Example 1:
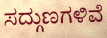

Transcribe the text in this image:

ಸದ್ಗುಣಗಳಿವೆ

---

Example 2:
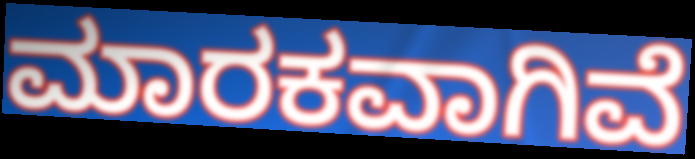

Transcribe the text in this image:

ಮಾರಕವಾಗಿವೆ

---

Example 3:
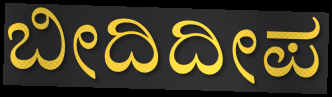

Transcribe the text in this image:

ಬೀದಿದೀಪ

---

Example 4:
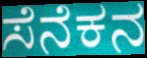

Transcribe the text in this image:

ಸೆನೆಕನ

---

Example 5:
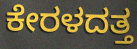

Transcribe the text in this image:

ಕೇರಳದತ್ತ